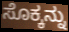
ಸೊಕ್ಕನ್ನು